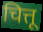
चित्तू